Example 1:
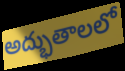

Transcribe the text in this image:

అద్భుతాలలో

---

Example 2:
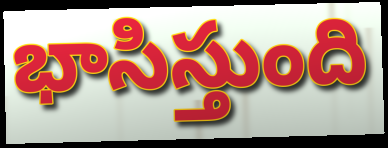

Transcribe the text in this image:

భాసిస్తుంది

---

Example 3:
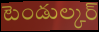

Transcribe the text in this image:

టెండుల్కర్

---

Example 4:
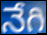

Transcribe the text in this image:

నేగి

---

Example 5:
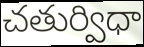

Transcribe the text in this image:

చతుర్విధా